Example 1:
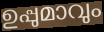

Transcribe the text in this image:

ഉപ്പുമാവും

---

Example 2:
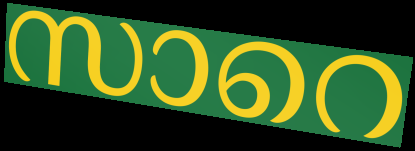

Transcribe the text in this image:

സാറെ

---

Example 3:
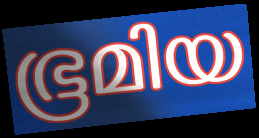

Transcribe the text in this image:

ഭൂമിയ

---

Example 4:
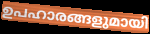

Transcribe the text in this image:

ഉപഹാരങ്ങളുമായി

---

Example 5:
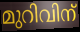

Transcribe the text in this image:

മുറിവിന്